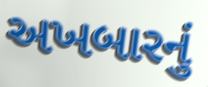
અખબારનું